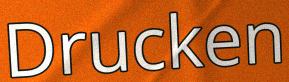
Drucken